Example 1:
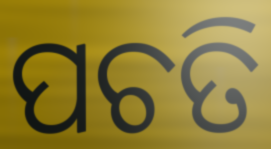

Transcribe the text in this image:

ପଚତି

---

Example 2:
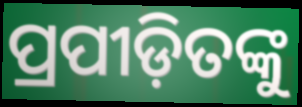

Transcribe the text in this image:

ପ୍ରପୀଡ଼ିତଙ୍କୁ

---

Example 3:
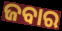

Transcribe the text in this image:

ଜବାର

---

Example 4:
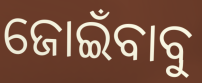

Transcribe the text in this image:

ଜୋଇଁବାବୁ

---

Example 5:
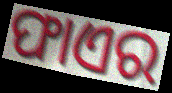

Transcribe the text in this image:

ଫାଏର